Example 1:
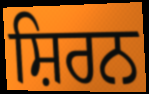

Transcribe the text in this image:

ਸ਼ਿਰਨ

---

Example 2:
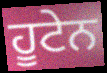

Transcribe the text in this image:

ਹੂਟੇਨ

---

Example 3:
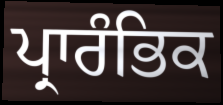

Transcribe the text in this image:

ਪ੍ਰਾਰੰਭਿਕ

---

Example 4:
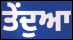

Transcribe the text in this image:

ਤੇਂਦੁਆ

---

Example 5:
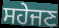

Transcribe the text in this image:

ਸਹੇਜਣ